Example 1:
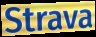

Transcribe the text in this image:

Strava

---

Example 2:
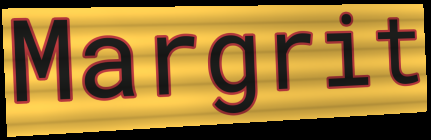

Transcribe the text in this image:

Margrit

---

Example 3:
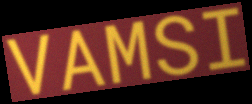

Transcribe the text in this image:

VAMSI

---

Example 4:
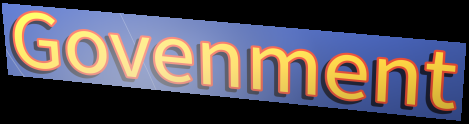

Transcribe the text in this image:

Govenment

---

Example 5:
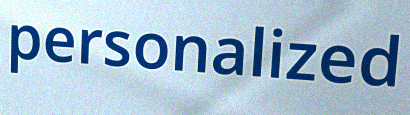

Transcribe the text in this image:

personalized